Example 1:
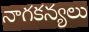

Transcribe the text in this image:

నాగకన్యలు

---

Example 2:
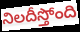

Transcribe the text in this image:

నిలదీస్తోంది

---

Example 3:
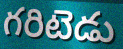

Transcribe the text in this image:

గరిటెడు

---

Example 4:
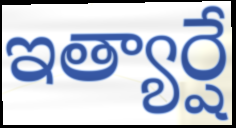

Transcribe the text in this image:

ఇత్యార్షే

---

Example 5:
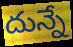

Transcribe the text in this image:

దున్నే